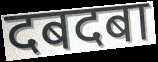
दबदबा